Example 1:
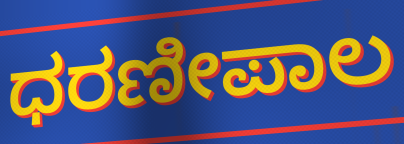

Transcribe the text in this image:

ಧರಣೀಪಾಲ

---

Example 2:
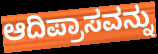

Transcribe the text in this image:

ಆದಿಪ್ರಾಸವನ್ನು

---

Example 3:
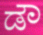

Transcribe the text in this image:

ಡೌ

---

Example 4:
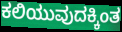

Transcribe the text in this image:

ಕಲಿಯುವುದಕ್ಕಿಂತ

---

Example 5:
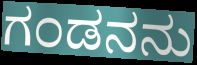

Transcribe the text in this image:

ಗಂಡನನು